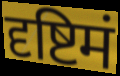
दृष्टिमं